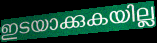
ഇടയാക്കുകയില്ല